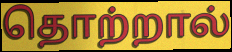
தொற்றால்